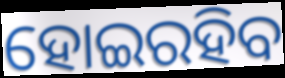
ହୋଇରହିବ